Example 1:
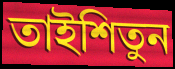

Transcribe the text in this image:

তাইশিতুন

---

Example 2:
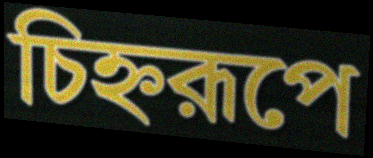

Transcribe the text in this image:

চিহ্নরূপে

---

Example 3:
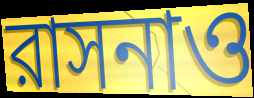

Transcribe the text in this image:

রাসনাও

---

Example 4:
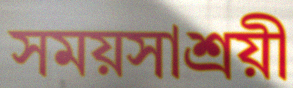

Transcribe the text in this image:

সময়সাশ্রয়ী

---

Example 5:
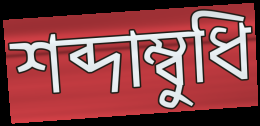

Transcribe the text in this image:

শব্দাম্বুধি